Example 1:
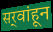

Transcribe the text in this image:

सर्वांहून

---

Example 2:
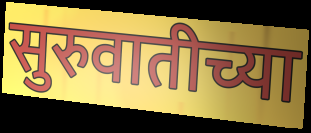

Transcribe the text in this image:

सुरुवातीच्या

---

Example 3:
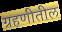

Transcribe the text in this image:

ग्रहणीतील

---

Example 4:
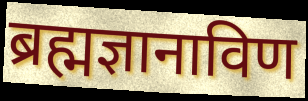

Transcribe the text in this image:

ब्रह्मज्ञानाविण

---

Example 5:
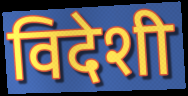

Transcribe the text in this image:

विदेशी